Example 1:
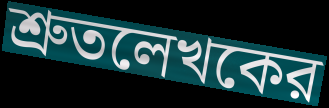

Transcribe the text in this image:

শ্রুতলেখকের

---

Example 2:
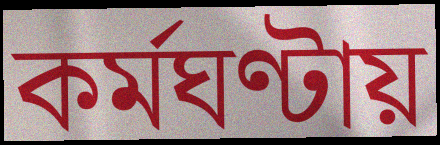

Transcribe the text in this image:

কর্মঘণ্টায়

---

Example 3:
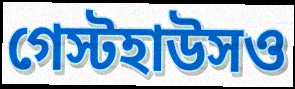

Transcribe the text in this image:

গেস্টহাউসও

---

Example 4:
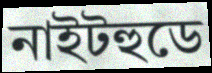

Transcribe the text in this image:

নাইটহুডে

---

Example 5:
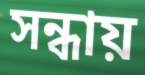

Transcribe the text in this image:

সন্ধায়